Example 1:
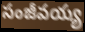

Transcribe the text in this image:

సంజీవయ్య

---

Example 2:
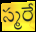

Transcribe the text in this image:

స్మరే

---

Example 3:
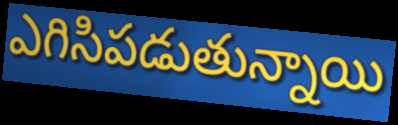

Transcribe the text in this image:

ఎగిసిపడుతున్నాయి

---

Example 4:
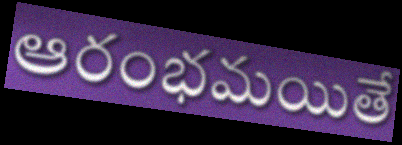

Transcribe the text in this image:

ఆరంభమయితే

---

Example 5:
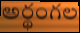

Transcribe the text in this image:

అర్థంగల